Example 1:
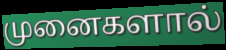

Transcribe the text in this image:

முனைகளால்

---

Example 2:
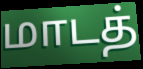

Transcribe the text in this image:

மாடத்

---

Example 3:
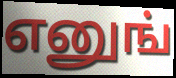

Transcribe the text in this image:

எனுங்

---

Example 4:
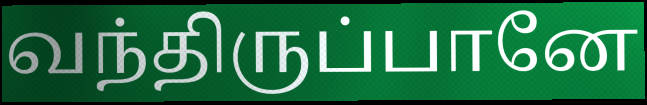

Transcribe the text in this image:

வந்திருப்பானே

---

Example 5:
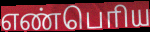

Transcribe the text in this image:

எண்பெரிய